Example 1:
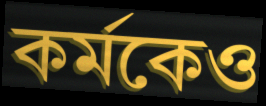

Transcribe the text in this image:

কর্মকেও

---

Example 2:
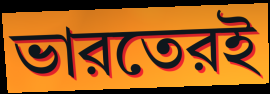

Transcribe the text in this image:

ভারতেরই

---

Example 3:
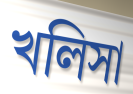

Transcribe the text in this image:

খলিসা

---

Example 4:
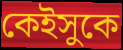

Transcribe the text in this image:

কেইসুকে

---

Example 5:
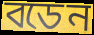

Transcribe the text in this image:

বডেন